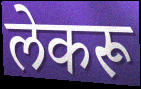
लेकरू